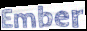
Ember